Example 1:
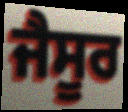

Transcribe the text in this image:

ਜੈਸੂਰ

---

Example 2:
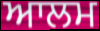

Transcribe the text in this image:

ਆਲਮ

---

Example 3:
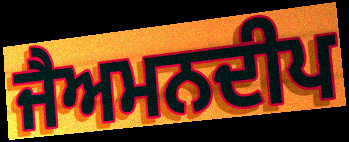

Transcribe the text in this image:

ਜੈਅਮਨਦੀਪ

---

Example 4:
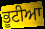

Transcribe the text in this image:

ਭੂਟੀਆ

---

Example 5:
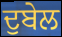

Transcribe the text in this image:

ਦੁਬੇਲ